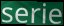
serie